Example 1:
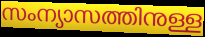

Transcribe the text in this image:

സംന്യാസത്തിനുള്ള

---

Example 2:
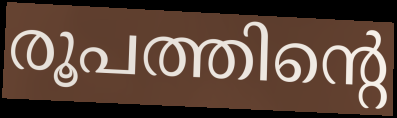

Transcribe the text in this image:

രൂപത്തിന്റെ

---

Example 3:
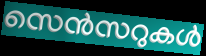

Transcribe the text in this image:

സെൻസറുകൾ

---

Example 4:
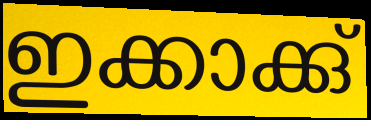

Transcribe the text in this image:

ഇക്കാക്കു്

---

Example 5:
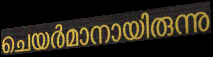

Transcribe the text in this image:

ചെയർമാനായിരുന്നു